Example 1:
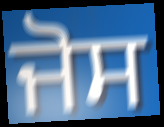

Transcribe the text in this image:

ਜੋਸ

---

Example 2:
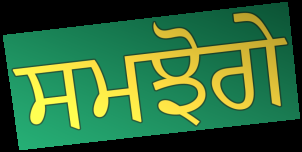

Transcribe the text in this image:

ਸਮਝੋਗੇ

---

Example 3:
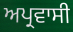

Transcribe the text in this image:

ਅਪ੍ਰਵਾਸੀ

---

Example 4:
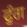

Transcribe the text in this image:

ਫੁੰਗ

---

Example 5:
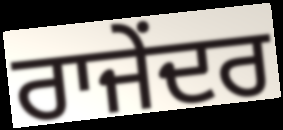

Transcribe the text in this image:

ਰਾਜੇਂਦਰ